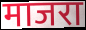
माजरा